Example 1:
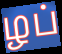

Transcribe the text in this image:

ழப்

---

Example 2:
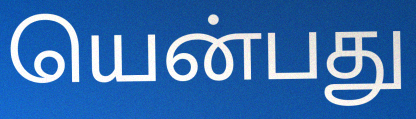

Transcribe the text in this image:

யென்பது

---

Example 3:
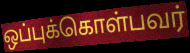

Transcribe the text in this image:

ஒப்புக்கொள்பவர்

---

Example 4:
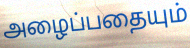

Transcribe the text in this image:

அழைப்பதையும்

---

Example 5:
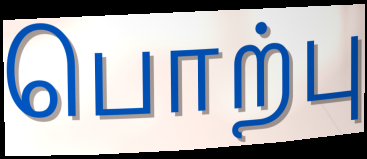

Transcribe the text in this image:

பொற்பு